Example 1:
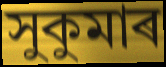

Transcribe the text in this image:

সুকুমাৰ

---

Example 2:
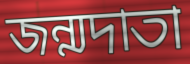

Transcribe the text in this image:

জন্মদাতা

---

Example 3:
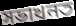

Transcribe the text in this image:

সভাখনত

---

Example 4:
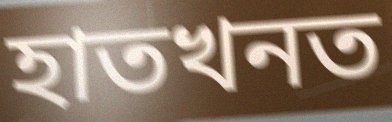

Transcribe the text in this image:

হাতখনত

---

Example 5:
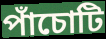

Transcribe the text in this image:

পাঁচোটি